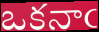
ఒకనాఁ